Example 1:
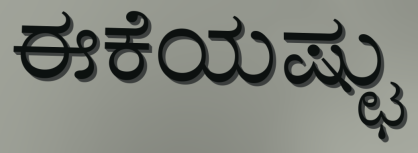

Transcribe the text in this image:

ಈಕೆಯಷ್ಟು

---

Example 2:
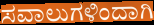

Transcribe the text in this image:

ಸವಾಲುಗಳಿಂದಾಗಿ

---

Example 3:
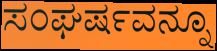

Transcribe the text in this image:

ಸಂಘರ್ಷವನ್ನೂ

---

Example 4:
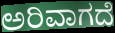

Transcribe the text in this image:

ಅರಿವಾಗದೆ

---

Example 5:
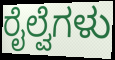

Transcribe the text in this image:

ರೈಲ್ವೆಗಳು